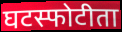
घटस्फोटीता